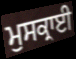
ਮੁਸਕ੍ਰਾਈ